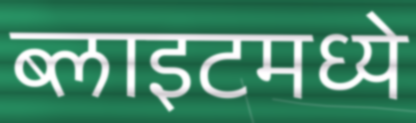
ब्लाइटमध्ये